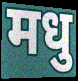
मधु